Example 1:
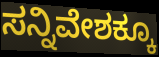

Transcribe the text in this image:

ಸನ್ನಿವೇಶಕ್ಕೂ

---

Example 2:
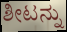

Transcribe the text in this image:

ಶೀಟನ್ನು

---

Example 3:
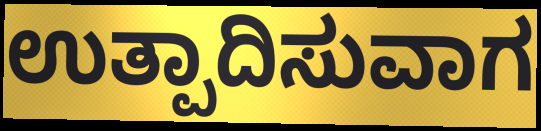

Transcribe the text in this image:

ಉತ್ಪಾದಿಸುವಾಗ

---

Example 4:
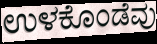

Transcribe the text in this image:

ಉಳಕೊಂಡೆವು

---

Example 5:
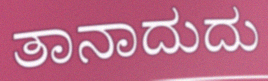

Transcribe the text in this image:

ತಾನಾದುದು